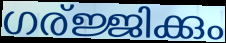
ഗര്ജ്ജിക്കും